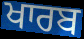
ਖਾਰਬ